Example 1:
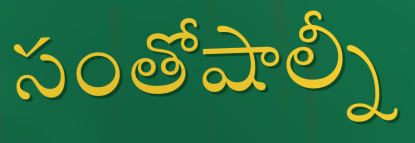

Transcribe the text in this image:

సంతోషాల్నీ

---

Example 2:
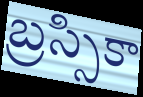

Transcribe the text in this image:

బ్రస్సికా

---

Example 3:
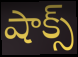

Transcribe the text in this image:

షాక్స్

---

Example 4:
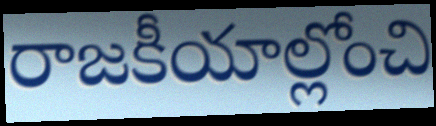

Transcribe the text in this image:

రాజకీయాల్లోంచి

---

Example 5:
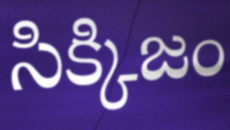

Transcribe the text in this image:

సిక్కిజం